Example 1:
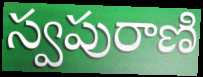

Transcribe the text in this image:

స్వపురాణి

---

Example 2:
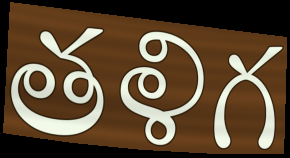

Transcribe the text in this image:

తళిగ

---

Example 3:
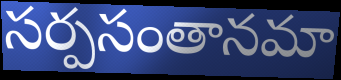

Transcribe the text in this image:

సర్పసంతానమా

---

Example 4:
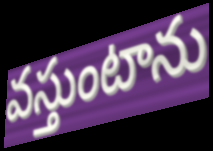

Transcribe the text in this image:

వస్తుంటాను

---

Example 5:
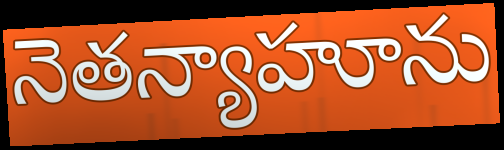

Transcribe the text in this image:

నెతన్యాహూను